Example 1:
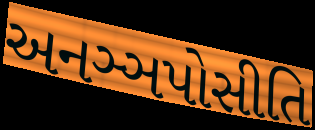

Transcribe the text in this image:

અનઞ્ઞપોસીતિ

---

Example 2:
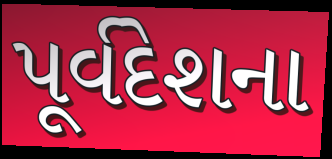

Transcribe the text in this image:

પૂર્વદેશના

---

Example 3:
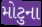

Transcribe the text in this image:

મોટુના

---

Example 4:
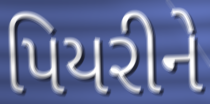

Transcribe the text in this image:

પિયરીને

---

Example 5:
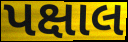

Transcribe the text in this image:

પક્ષાલ